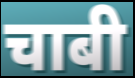
चाबी